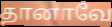
தானாவே